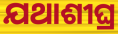
ଯଥାଶୀଘ୍ର